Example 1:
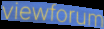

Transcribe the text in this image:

viewforum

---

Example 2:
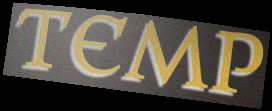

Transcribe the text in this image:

TEMP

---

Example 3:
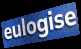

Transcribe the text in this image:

eulogise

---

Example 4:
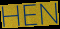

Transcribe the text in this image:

HEN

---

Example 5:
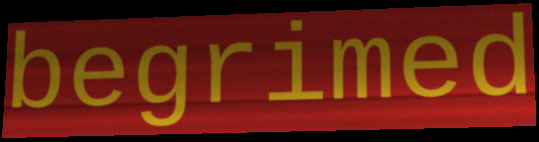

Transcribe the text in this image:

begrimed